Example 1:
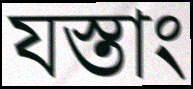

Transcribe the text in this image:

যস্তাং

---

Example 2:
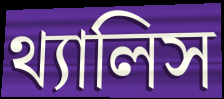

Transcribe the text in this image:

থ্যালিস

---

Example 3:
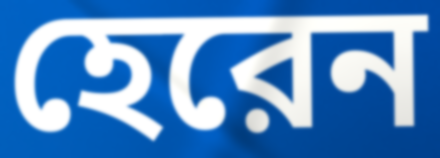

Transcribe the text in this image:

হেরেন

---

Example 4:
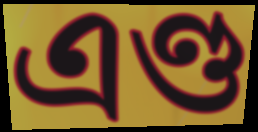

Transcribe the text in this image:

এণ্ড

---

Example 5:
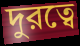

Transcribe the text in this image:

দুরত্বে